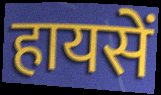
हायसें